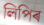
লিপিৰ